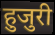
हुजुरी